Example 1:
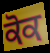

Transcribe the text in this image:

ਕੋਕ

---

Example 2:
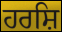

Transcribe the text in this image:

ਹਰਸ਼ਿ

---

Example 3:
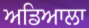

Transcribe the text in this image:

ਅਡਿਆਲਾ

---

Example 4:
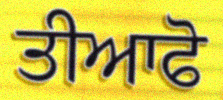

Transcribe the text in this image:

ਤੀਆਫੋ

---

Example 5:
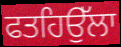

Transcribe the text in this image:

ਫਤਹਿਉੱਲਾ